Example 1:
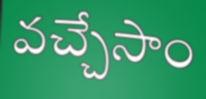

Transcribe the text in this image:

వచ్చేసాం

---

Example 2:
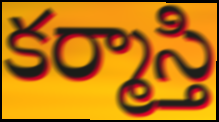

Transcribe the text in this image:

కర్మాస్తి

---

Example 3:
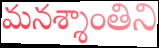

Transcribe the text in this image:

మనశ్శాంతిని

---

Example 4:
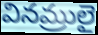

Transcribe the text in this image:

వినమ్రులై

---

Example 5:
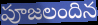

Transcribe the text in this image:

పూజలందిన